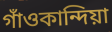
গাঁওকান্দিয়া